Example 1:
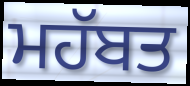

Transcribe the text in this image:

ਮਹੱਬਤ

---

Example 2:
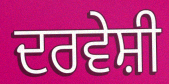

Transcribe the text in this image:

ਦਰਵੇਸ਼ੀ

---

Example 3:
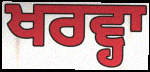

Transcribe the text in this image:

ਖਰਵ੍ਹਾ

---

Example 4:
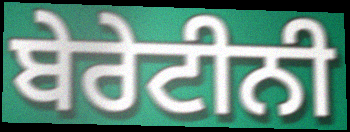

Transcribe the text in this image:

ਬੇਰੇਟੀਨੀ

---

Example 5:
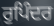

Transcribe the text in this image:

ਰੁਪਿੰਦਰ